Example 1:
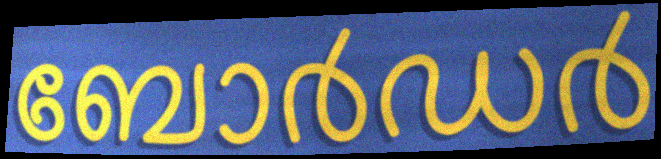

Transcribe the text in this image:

ബോർഡർ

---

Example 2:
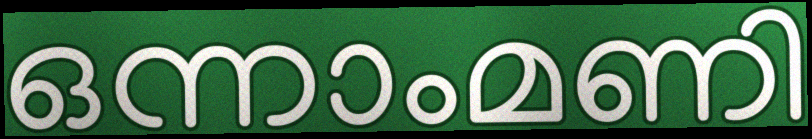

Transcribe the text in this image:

ഒന്നാംമണി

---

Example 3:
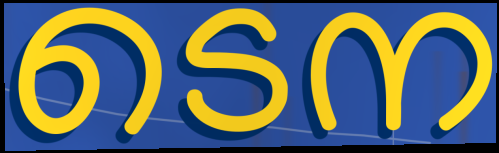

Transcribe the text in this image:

ടെന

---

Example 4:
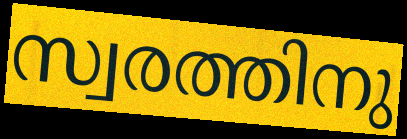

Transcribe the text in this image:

സ്വരത്തിനു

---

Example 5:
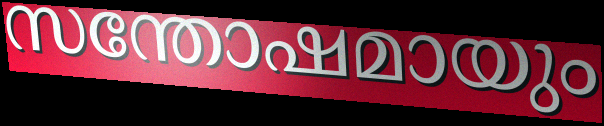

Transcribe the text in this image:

സന്തോഷമായും